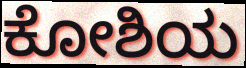
ಕೋಶಿಯ